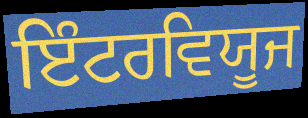
ਇੰਟਰਵਿਯੂਜ